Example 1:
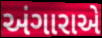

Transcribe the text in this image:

અંગારાએ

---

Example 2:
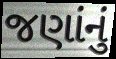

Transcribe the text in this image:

જણાંનું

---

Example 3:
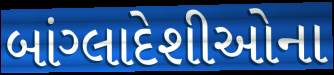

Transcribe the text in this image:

બાંગ્લાદેશીઓના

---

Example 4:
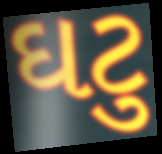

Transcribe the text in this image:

ઘટુ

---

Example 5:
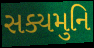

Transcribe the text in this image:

સક્યમુનિ